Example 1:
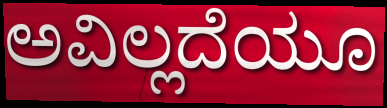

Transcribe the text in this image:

ಅವಿಲ್ಲದೆಯೂ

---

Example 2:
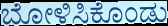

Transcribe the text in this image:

ಬೋಳಿಸಿಕೊಂಡು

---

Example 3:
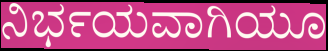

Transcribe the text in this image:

ನಿರ್ಭಯವಾಗಿಯೂ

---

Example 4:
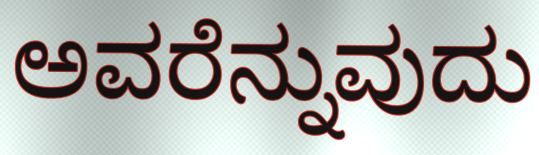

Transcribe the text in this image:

ಅವರೆನ್ನುವುದು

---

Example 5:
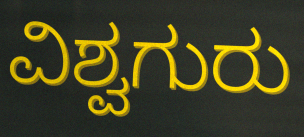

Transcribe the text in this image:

ವಿಶ್ವಗುರು